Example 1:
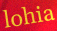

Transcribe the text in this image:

lohia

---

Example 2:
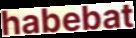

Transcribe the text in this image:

habebat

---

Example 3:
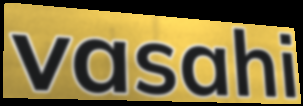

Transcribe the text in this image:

vasahi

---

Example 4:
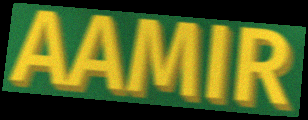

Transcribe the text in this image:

AAMIR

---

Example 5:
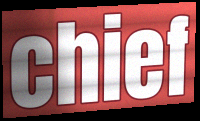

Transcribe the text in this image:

chief